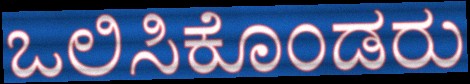
ಒಲಿಸಿಕೊಂಡರು